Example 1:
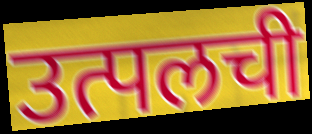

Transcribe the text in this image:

उत्पलची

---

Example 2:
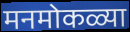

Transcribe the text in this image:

मनमोकळ्या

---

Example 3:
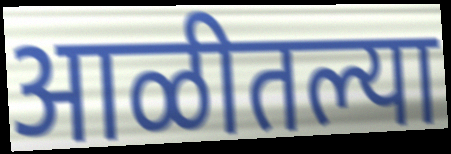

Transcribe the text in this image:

आळीतल्या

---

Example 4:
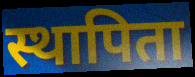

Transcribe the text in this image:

स्थापिता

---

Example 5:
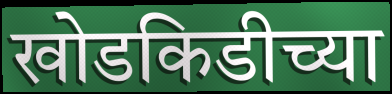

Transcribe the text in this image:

खोडकिडीच्या